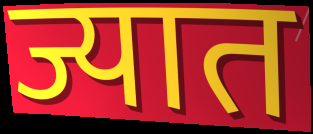
ज्यात